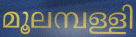
മൂലമ്പള്ളി